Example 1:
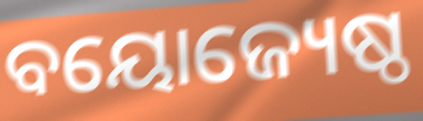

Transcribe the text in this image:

ବୟୋଜ୍ୟେଷ୍ଠ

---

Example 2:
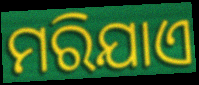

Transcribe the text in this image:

ମରିଯାଏ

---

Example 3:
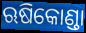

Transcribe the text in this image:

ଋଷିକୋଣ୍ଡା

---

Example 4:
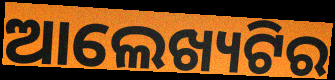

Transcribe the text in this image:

ଆଲେଖ୍ୟଟିର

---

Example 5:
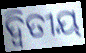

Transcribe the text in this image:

ଦ୍ୱିତୀୟ